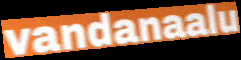
vandanaalu